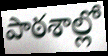
పాఠశాల్లో